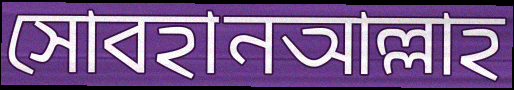
সোবহানআল্লাহ